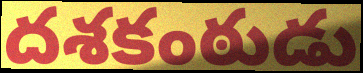
దశకంఠుడు